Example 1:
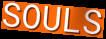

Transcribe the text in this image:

SOULS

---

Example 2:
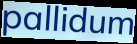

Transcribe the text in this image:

pallidum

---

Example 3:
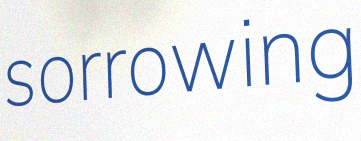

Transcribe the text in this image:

sorrowing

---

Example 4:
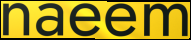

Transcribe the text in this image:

naeem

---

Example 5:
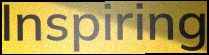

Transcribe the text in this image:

Inspiring